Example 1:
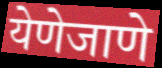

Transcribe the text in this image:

येणेजाणे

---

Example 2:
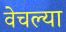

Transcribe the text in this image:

वेचल्या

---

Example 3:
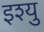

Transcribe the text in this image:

इश्यु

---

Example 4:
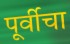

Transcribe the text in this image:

पूर्वीचा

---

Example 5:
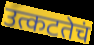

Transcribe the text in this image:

उत्कटतेचं